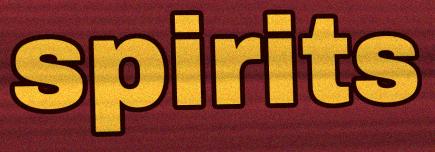
spirits